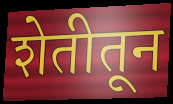
शेतीतून